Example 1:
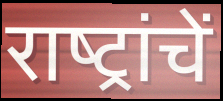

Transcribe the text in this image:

राष्ट्रांचें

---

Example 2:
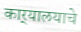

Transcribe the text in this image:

कार्यालयाचे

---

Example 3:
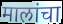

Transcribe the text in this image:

मालांचा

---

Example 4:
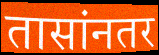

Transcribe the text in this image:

तासांनतर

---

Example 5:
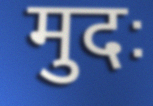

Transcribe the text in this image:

मुदः